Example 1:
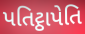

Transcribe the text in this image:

પતિટ્ઠાપેતિ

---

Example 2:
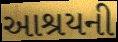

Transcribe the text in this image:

આશ્રયની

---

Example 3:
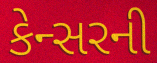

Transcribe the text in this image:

કેન્સરની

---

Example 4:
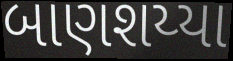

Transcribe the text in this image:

બાણશય્યા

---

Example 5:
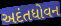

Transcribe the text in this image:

અદંતધોવન